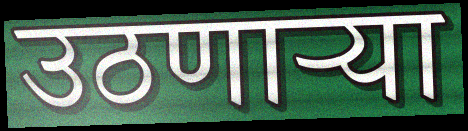
उठणाऱ्या